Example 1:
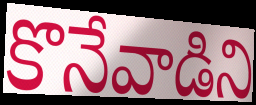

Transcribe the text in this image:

కొనేవాడిని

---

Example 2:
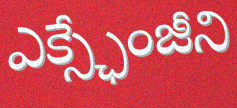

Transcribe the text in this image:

ఎక్స్ఛేంజీని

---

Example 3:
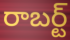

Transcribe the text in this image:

రాబర్ట్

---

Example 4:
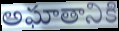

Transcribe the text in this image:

అఘాతానికి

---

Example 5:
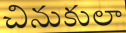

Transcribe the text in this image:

చినుకులా